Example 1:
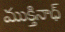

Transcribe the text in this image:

ముక్తినాధ్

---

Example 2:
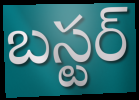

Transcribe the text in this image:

బస్టర్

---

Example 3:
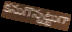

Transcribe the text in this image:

కనుగొన్నట్టుగా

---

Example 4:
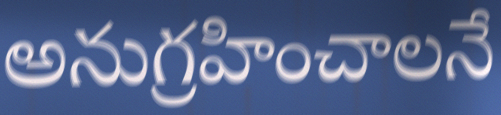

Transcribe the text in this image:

అనుగ్రహించాలనే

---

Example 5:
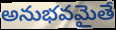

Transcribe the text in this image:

అనుభవమైతే